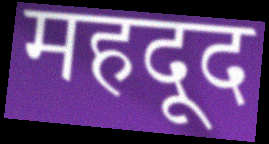
महदूद